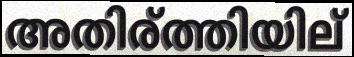
അതിര്ത്തിയില്